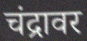
चंद्रावर